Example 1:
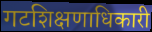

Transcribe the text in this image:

गटशिक्षणाधिकारी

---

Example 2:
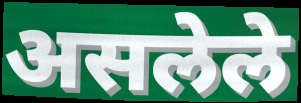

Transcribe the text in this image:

असलेले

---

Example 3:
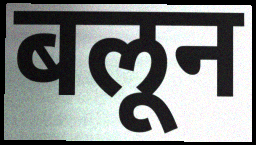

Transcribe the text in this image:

बलून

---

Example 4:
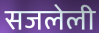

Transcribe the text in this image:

सजलेली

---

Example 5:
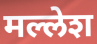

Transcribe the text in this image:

मल्लेश